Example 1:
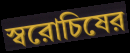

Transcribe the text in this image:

স্বরোচিষের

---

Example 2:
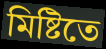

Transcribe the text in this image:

মিষ্টিতে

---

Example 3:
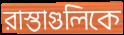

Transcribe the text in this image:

রাস্তাগুলিকে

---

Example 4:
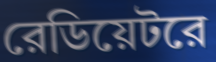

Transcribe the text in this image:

রেডিয়েটরে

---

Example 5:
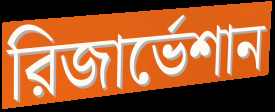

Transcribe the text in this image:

রিজার্ভেশান